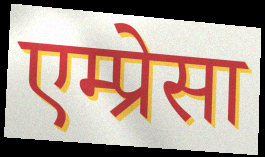
एम्प्रेसा